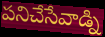
పనిచేసేవాడ్ని